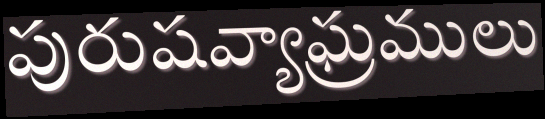
పురుషవ్యాఘ్రములు